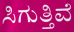
ಸಿಗುತ್ತಿವೆ